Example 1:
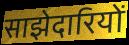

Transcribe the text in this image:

साझेदारियों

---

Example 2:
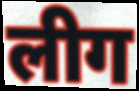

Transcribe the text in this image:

लीग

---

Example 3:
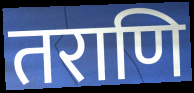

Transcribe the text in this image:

तराणि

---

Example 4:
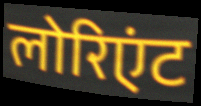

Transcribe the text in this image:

लोरिएंट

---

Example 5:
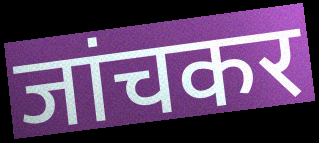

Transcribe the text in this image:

जांचकर